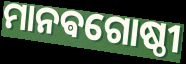
ମାନଵଗୋଷ୍ଠୀ